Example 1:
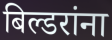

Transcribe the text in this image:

बिल्डरांना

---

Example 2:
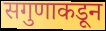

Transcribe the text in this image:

सगुणाकडून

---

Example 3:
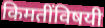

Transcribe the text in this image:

किमतींविषयी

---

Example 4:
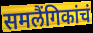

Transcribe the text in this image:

समलैंगिकांचं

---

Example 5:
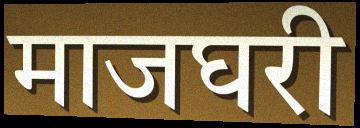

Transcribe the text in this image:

माजघरी